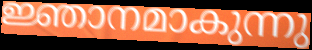
ജ്ഞാനമാകുന്നു